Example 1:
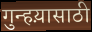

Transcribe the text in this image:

गुन्हय़ासाठी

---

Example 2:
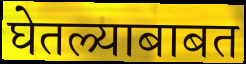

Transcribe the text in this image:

घेतल्याबाबत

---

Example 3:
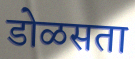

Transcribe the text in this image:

डोळसता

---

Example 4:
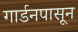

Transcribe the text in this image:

गार्डनपासून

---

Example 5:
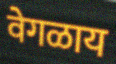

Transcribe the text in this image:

वेगळाय